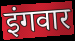
इंगवार